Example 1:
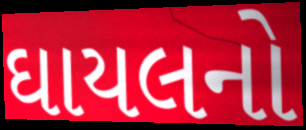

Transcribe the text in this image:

ઘાયલનો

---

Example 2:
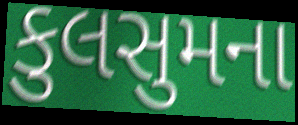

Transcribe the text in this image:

કુલસુમના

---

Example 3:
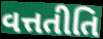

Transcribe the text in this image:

વત્તતીતિ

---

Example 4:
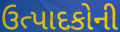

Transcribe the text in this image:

ઉત્પાદકોની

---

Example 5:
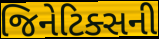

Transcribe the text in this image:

જિનેટિક્સની